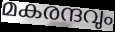
മകരന്ദവും